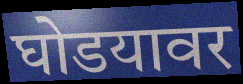
घोडयावर